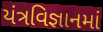
યંત્રવિજ્ઞાનમાં